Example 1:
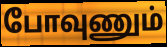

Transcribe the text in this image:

போவுணும்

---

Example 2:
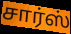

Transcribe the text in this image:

சார்ஸ்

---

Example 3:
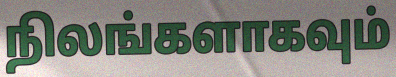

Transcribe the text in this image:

நிலங்களாகவும்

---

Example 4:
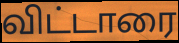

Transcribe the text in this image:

விட்டாரை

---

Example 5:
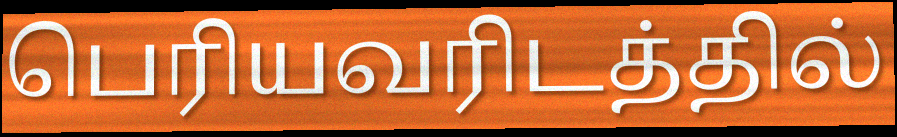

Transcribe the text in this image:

பெரியவரிடத்தில்